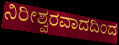
ನಿರೀಶ್ವರವಾದದಿಂದ